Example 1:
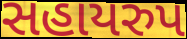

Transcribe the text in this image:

સહાયરુપ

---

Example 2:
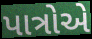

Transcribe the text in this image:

પાત્રોએ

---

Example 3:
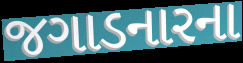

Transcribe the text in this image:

જગાડનારના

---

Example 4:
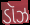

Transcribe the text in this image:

ડૉઝ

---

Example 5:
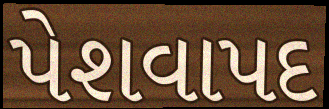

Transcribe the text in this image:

પેશવાપદ